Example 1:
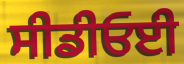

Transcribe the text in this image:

ਸੀਡੀਓਈ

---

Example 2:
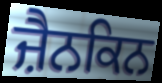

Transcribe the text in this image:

ਜ਼ੈਨਕਿਨ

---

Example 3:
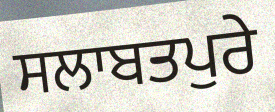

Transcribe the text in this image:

ਸਲਾਬਤਪੁਰੇ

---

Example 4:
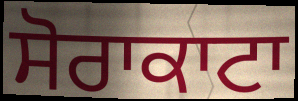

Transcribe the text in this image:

ਸੋਰਾਕਾਟਾ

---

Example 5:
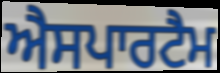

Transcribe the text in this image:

ਐਸਪਾਰਟੈਮ